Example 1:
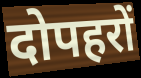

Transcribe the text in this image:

दोपहरों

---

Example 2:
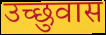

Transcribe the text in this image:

उच्छुवास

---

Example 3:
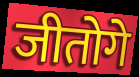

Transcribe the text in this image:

जीतोगे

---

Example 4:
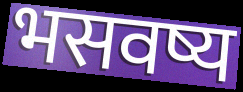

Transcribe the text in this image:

भसवष्य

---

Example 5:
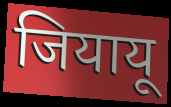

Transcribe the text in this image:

जियायू